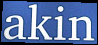
akin